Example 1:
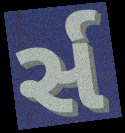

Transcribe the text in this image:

ર્સ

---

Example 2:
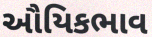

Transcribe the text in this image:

ઔયિકભાવ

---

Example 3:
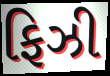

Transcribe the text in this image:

ફિઝી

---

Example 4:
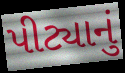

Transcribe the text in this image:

પીટ્યાનું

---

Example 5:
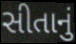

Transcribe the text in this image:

સીતાનું